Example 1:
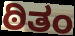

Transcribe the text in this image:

ಠಿತಂ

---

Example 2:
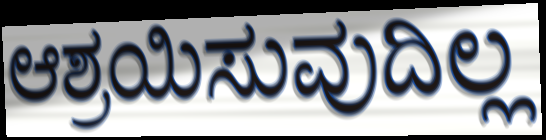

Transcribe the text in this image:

ಆಶ್ರಯಿಸುವುದಿಲ್ಲ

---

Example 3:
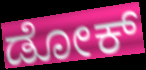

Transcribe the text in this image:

ಡೋಕ್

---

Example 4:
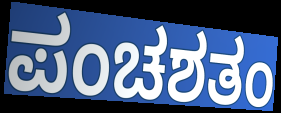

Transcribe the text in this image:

ಪಂಚಶತಂ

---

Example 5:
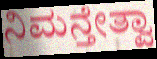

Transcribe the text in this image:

ನಿಮನ್ತೇತ್ವಾ